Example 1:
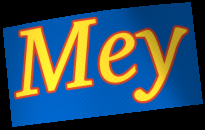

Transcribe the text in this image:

Mey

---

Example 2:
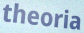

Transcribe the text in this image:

theoria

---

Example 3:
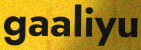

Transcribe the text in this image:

gaaliyu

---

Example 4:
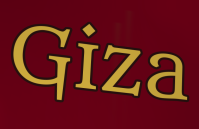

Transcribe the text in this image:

Giza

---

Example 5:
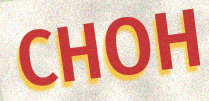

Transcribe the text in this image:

CHOH